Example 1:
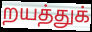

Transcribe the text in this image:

றயத்துக்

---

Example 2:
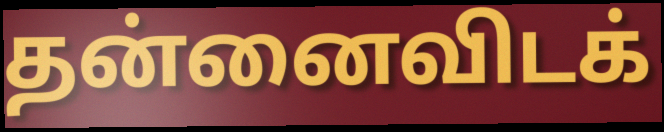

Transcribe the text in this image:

தன்னைவிடக்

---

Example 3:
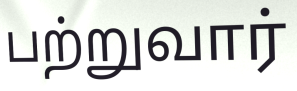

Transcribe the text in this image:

பற்றுவார்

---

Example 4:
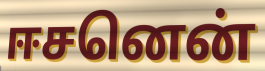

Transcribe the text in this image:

ஈசனென்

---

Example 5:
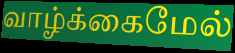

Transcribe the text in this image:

வாழ்க்கைமேல்